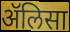
ॲलिसा